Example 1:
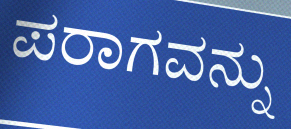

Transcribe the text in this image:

ಪರಾಗವನ್ನು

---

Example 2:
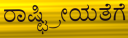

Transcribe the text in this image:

ರಾಷ್ಟ್ರೀಯತೆಗೆ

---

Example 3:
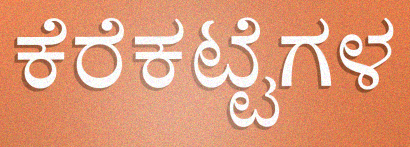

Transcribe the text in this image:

ಕೆರೆಕಟ್ಟೆಗಳ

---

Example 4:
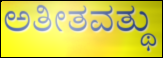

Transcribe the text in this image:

ಅತೀತವತ್ಥು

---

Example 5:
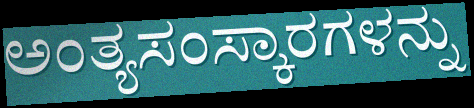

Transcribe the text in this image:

ಅಂತ್ಯಸಂಸ್ಕಾರಗಳನ್ನು